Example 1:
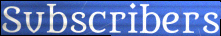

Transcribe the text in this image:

Subscribers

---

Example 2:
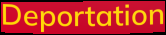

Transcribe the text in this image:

Deportation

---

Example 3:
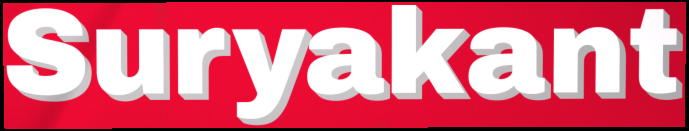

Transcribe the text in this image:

Suryakant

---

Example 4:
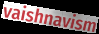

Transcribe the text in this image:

vaishnavism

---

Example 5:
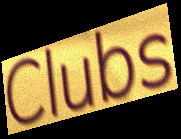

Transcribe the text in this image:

Clubs